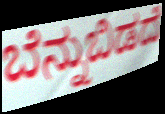
ಬೆನ್ನುಬಿಡದೆ